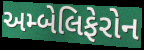
અમ્બેલિફેરોન